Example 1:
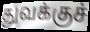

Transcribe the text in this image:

துவக்குச்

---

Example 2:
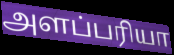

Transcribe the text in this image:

அளப்பரியா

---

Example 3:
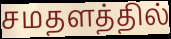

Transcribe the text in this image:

சமதளத்தில்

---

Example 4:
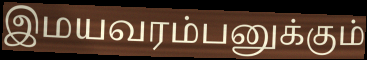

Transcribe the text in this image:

இமயவரம்பனுக்கும்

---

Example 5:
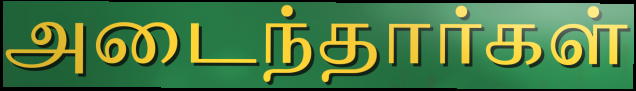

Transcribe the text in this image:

அடைந்தார்கள்